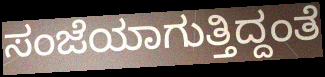
ಸಂಜೆಯಾಗುತ್ತಿದ್ದಂತೆ